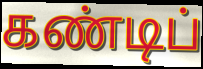
கண்டிப்